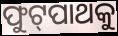
ଫୁଟ୍‌ପାଥକୁ